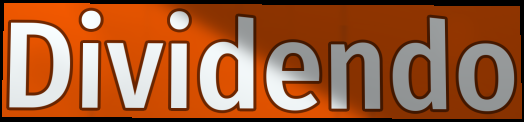
Dividendo